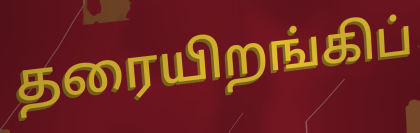
தரையிறங்கிப்